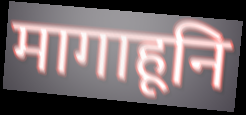
मागाहूनि